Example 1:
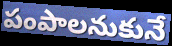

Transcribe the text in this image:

పంపాలనుకునే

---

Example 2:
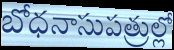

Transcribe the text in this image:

బోధనాసుపత్రుల్లో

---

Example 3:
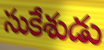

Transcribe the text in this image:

సుకేశుడు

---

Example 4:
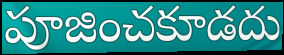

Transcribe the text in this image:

పూజించకూడదు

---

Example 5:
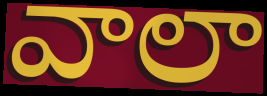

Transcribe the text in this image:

వాలా